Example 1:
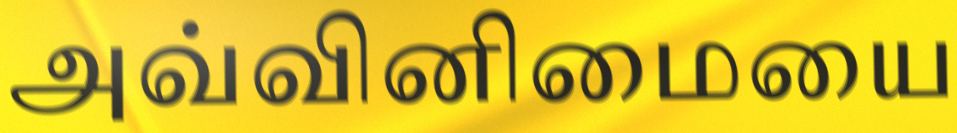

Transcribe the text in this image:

அவ்வினிமையை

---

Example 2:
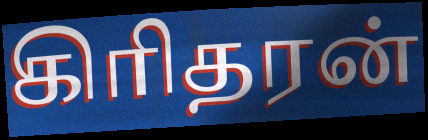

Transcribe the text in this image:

கிரிதரன்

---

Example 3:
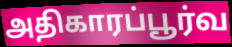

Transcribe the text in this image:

அதிகாரப்பூர்வ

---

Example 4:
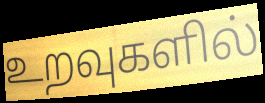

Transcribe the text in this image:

உறவுகளில்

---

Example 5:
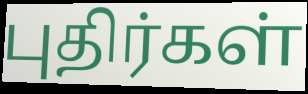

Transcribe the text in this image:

புதிர்கள்